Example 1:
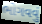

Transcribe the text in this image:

ભોગવવું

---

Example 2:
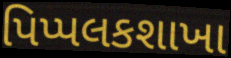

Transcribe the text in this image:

પિપ્પલકશાખા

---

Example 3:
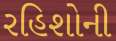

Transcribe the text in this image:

રહિશોની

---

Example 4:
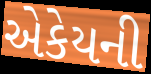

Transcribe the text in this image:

એકેયની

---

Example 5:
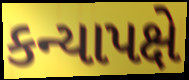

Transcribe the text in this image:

કન્યાપક્ષે